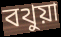
বথুয়া